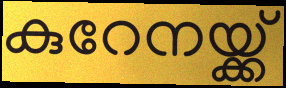
കുറേനയ്ക്ക്